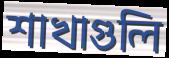
শাখাগুলি